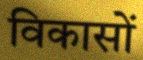
विकासों